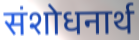
संशोधनार्थ